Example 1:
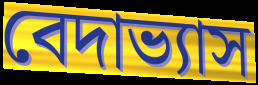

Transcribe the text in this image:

বেদাভ্যাস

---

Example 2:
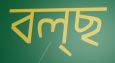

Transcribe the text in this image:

বল্‌ছ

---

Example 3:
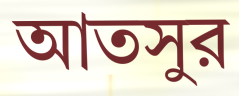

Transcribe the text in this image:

আতসুর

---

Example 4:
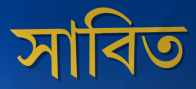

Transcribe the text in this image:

সাবিত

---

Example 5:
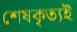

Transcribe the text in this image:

শেষকৃত্যই